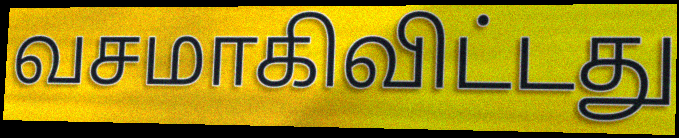
வசமாகிவிட்டது